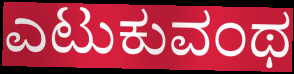
ಎಟುಕುವಂಥ